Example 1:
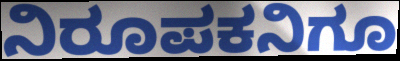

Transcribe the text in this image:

ನಿರೂಪಕನಿಗೂ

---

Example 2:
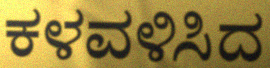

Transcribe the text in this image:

ಕಳವಳಿಸಿದ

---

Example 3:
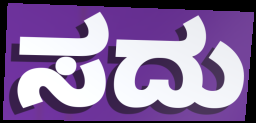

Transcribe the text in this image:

ಸದು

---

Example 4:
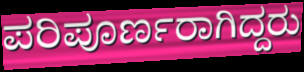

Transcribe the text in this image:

ಪರಿಪೂರ್ಣರಾಗಿದ್ದರು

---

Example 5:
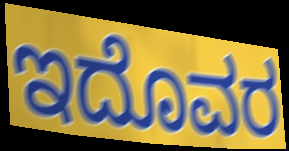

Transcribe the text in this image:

ಇದೊವರ